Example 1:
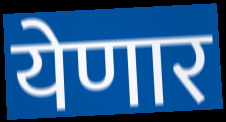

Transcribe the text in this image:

येणार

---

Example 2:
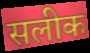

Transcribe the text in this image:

सलीक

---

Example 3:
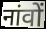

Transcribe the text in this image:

नांवों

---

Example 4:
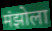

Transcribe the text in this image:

मंझोला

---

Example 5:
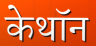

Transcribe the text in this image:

केथॉन